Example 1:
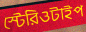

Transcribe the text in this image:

স্টেরিওটাইপ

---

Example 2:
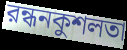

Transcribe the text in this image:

রন্ধনকুশলতা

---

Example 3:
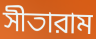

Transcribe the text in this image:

সীতারাম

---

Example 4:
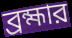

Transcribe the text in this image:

ব্রহ্মার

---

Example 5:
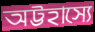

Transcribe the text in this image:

অট্টহাস্যে